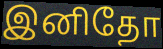
இனிதோ